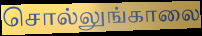
சொல்லுங்காலை